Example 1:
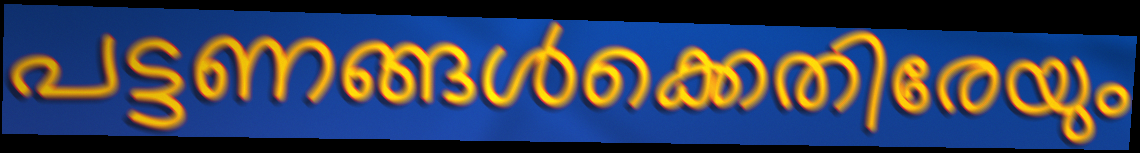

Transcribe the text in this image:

പട്ടണങ്ങൾക്കെതിരേയും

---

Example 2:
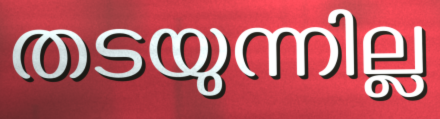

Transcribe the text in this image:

തടയുന്നില്ല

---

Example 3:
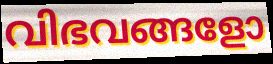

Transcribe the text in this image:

വിഭവങ്ങളോ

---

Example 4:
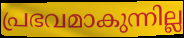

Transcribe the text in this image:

പ്രഭവമാകുന്നില്ല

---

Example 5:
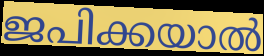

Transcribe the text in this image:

ജപിക്കയാൽ